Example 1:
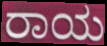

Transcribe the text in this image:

ರಾಯ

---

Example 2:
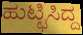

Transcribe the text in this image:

ಹುಟ್ಟಿಸಿದ್ದ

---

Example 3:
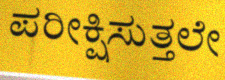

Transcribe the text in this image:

ಪರೀಕ್ಷಿಸುತ್ತಲೇ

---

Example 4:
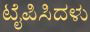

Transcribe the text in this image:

ಟೈಪಿಸಿದಳು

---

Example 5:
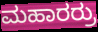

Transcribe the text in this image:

ಮಹಾರರ್ರು